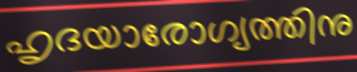
ഹൃദയാരോഗ്യത്തിനു